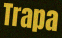
Trapa